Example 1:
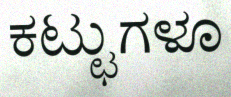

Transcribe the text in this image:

ಕಟ್ಟುಗಳೂ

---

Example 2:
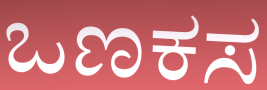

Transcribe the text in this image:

ಒಣಕಸ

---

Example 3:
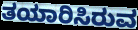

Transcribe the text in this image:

ತಯಾರಿಸಿರುವ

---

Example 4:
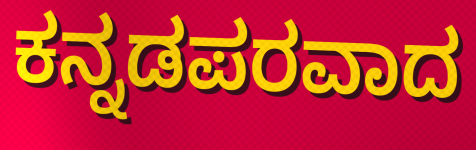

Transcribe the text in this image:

ಕನ್ನಡಪರವಾದ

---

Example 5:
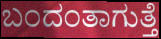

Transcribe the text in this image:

ಬಂದಂತಾಗುತ್ತೆ